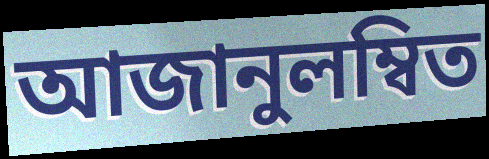
আজানুলম্বিত